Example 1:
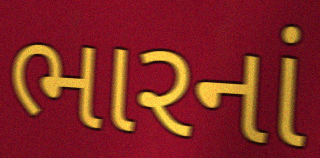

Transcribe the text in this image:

ભારનાં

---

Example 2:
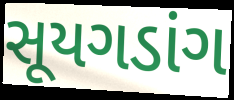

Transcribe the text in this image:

સૂયગડાંગ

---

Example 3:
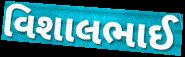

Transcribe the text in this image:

વિશાલભાઈ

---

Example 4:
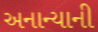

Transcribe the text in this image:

અનાન્યાની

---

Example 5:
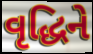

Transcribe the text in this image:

વૃદ્ધિને